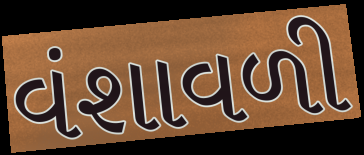
વંશાવળી